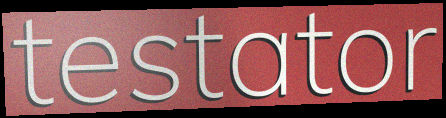
testator